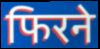
फिरने